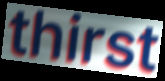
thirst